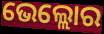
ଭେଲ୍ଲୋର